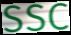
SSC